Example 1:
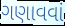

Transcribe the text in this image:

ગણાવવાં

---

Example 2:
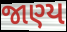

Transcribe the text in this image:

જાણ્ય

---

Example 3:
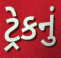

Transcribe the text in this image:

ટ્રેકનું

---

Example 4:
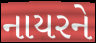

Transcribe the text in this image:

નાયરને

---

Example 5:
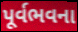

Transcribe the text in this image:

પૂર્વભવના